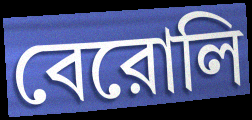
বেরোলি